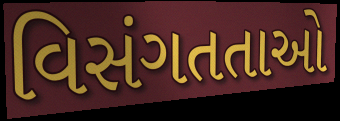
વિસંગતતાઓ